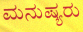
ಮನುಷ್ಯರು